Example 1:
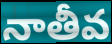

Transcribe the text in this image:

నాతీవ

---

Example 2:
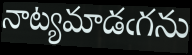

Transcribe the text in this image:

నాట్యమాడఁగను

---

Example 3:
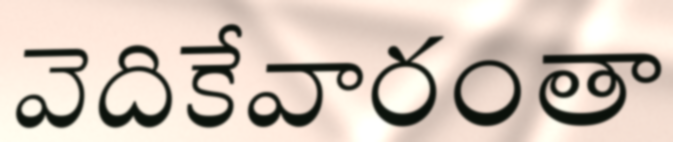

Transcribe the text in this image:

వెదికేవారంతా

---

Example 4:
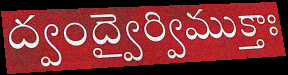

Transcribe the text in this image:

ద్వంద్వైర్విముక్తాః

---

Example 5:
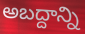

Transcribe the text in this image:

అబద్దాన్ని